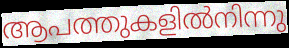
ആപത്തുകളിൽനിന്നു